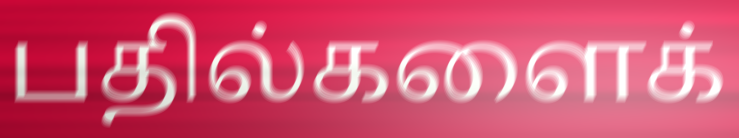
பதில்களைக்